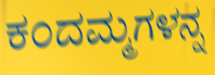
ಕಂದಮ್ಮಗಳನ್ನ